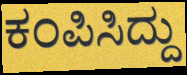
ಕಂಪಿಸಿದ್ದು